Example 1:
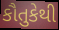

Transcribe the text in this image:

કૌતુકેથી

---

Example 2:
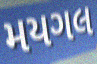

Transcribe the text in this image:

મયગલ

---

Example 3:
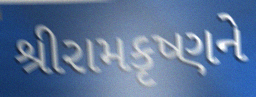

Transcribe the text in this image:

શ્રીરામકૃષ્ણને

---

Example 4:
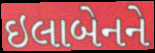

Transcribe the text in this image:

ઇલાબેનને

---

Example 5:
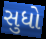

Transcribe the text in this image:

સુધો